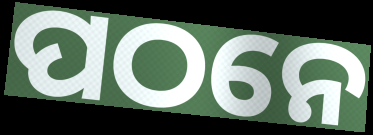
ପଠନେ